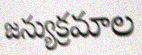
జన్యుక్రమాల